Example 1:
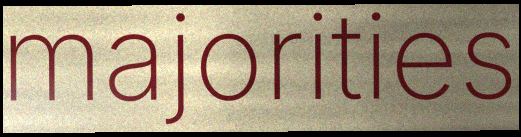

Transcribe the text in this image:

majorities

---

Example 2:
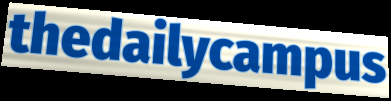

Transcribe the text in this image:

thedailycampus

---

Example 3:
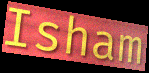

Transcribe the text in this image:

Isham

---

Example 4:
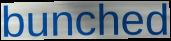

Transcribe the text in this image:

bunched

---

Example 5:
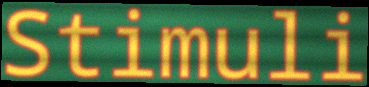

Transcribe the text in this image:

Stimuli